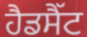
ਹੈਡਸੈੱਟ